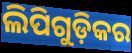
ଲିପିଗୁଡ଼ିକର